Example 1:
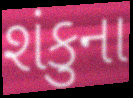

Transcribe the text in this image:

શંકુના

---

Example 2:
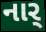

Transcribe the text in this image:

નાર્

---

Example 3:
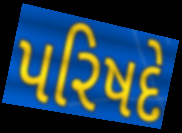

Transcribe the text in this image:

પરિષદે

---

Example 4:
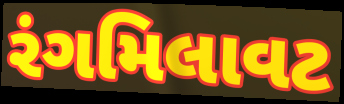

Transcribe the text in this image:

રંગમિલાવટ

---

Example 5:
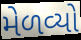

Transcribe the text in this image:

મેળવ્યો